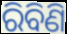
ରିବିଣି